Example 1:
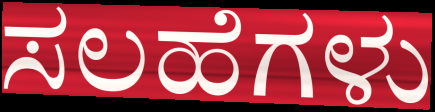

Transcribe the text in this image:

ಸಲಹೆಗಳು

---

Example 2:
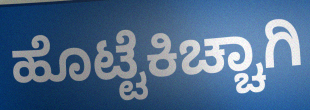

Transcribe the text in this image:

ಹೊಟ್ಟೆಕಿಚ್ಚಾಗಿ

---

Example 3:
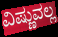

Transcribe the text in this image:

ವಿಷ್ಣುವಲ್ಲ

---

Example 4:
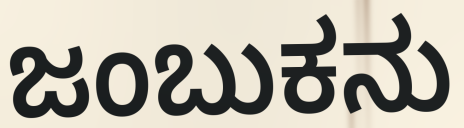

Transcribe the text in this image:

ಜಂಬುಕನು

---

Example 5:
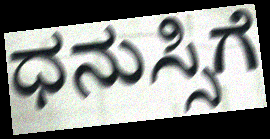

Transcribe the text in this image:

ಧನುಸ್ಸಿಗೆ